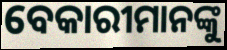
ବେକାରୀମାନଙ୍କୁ